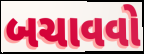
બચાવવો